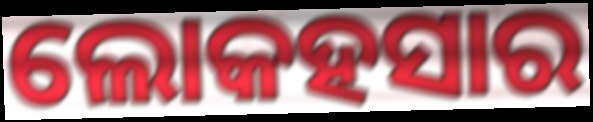
ଲୋକହସାର